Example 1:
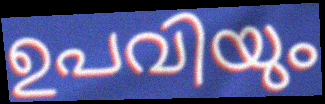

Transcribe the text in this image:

ഉപവിയും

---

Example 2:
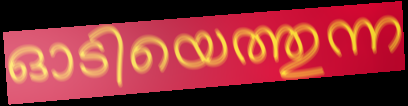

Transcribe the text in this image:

ഓടിയെത്തുന്ന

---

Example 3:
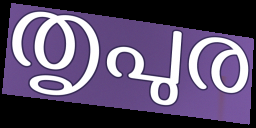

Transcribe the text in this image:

തൃപുര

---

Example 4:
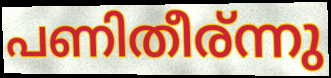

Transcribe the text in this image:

പണിതീര്ന്നു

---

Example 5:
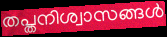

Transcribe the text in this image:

തപ്തനിശ്വാസങ്ങൾ